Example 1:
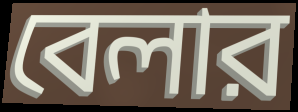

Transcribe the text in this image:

বেলার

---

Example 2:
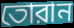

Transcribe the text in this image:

তোরান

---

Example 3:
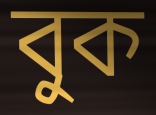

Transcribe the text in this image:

বুক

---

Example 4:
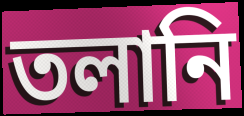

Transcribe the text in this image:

তলানি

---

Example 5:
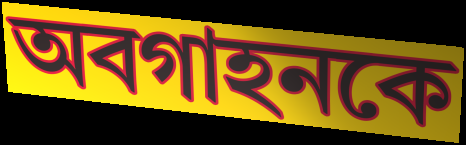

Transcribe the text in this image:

অবগাহনকে